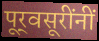
पूर्वसूरींनीं